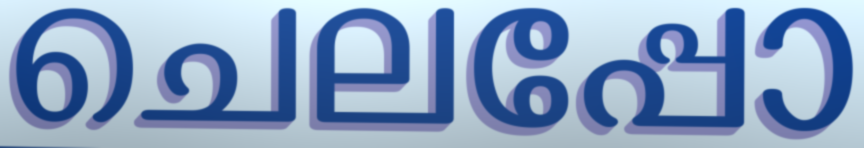
ചെലപ്പോ